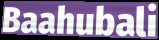
Baahubali